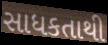
સાધકતાથી